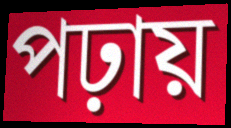
পঢ়ায়